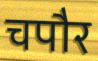
चपौर